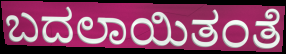
ಬದಲಾಯಿತಂತೆ